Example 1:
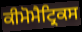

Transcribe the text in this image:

ਕੀਮੋਮੈਟ੍ਰਿਕਸ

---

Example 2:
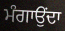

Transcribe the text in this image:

ਮੰਗਾਉਂਦਾ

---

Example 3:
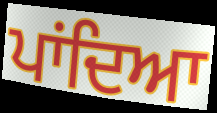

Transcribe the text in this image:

ਪਾਂਦਿਆ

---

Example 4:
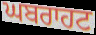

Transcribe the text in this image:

ਘਬਰਾਹਟ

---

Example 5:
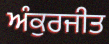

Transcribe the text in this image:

ਅੰਕੁਰਜੀਤ